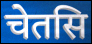
चेतसि